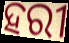
ହରୀ